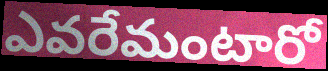
ఎవరేమంటారో